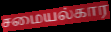
சமையல்கார